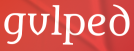
gulped